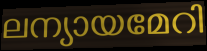
ലന്യായമേറി